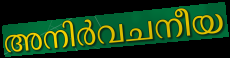
അനിർവചനീയ